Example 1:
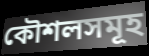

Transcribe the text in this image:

কৌশলসমূহ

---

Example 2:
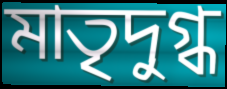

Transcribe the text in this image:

মাতৃদুগ্ধ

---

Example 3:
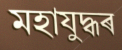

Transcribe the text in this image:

মহাযুদ্ধৰ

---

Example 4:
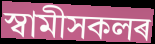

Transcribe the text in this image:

স্বামীসকলৰ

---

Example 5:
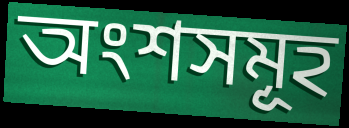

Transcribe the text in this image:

অংশসমূহ